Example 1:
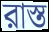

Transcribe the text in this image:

রাস্ত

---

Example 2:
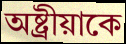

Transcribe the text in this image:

অষ্ট্রীয়াকে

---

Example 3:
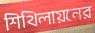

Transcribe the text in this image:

শিথিলায়নের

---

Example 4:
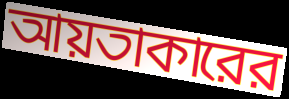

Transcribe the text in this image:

আয়তাকারের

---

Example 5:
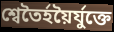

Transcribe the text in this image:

শ্বেতৈর্হয়ৈর্যুক্তে